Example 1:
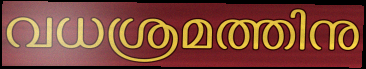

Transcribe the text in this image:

വധശ്രമത്തിനു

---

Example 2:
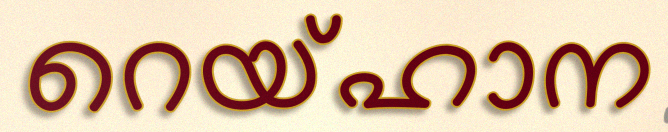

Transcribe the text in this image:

റെയ്ഹാന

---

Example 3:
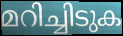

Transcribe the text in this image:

മറിച്ചിടുക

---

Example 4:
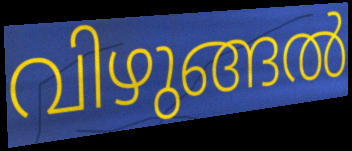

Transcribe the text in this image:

വിഴുങ്ങൽ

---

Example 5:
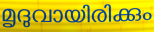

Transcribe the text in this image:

മൃദുവായിരിക്കും